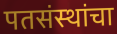
पतसंस्थांचा